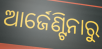
ଆର୍ଜେଣ୍ଟିନାରୁ